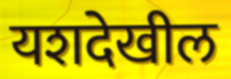
यशदेखील